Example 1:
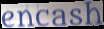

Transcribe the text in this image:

encash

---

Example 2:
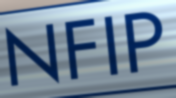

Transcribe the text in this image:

NFIP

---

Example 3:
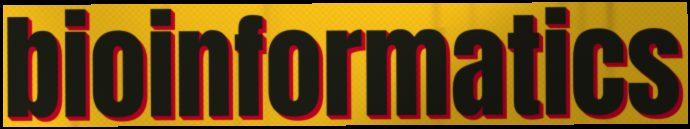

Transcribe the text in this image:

bioinformatics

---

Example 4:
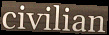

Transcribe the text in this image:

civilian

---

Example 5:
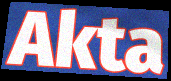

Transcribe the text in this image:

Akta